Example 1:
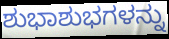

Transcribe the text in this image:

ಶುಭಾಶುಭಗಳನ್ನು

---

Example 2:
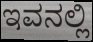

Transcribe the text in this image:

ಇವನಲ್ಲಿ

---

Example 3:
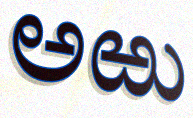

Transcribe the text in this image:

ಅಱು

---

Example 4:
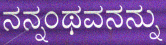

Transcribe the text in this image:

ನನ್ನಂಥವನನ್ನು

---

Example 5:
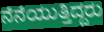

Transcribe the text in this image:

ನೆನೆಯುತ್ತಿದ್ದರು